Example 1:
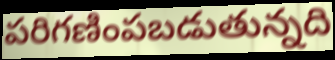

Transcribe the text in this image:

పరిగణింపబడుతున్నది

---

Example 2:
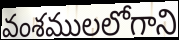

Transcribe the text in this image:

వంశములలోగాని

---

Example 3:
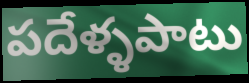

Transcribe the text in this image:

పదేళ్ళపాటు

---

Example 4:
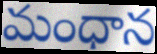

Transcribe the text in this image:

మంధాన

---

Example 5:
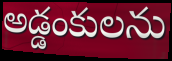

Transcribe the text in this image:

అడ్డంకులను